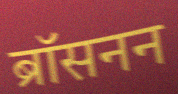
ब्रॉसनन